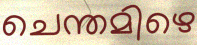
ചെന്തമിഴെ